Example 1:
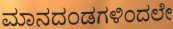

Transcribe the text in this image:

ಮಾನದಂಡಗಳಿಂದಲೇ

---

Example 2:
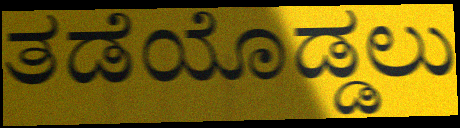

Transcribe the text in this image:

ತಡೆಯೊಡ್ಡಲು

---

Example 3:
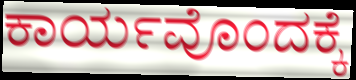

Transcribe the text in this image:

ಕಾರ್ಯವೊಂದಕ್ಕೆ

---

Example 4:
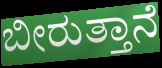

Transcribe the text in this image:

ಬೀರುತ್ತಾನೆ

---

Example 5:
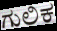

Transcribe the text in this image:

ಗುಲಿಕ